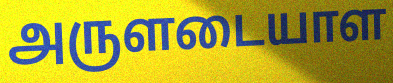
அருளடையாள